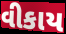
વીકાય